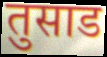
तुसाड